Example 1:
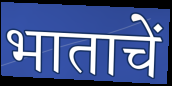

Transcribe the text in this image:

भाताचें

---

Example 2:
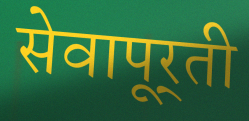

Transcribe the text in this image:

सेवापूर्ती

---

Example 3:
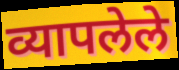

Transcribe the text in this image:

व्यापलेले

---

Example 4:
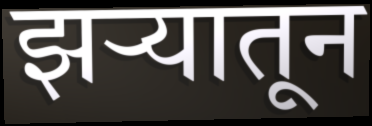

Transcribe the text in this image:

झऱ्यातून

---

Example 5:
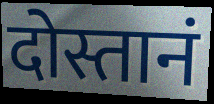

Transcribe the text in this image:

दोस्तानं